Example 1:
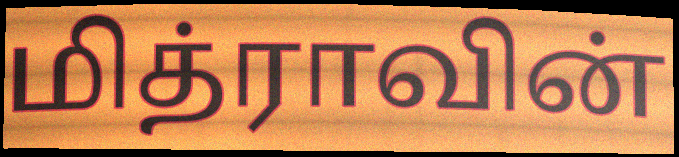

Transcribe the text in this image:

மித்ராவின்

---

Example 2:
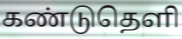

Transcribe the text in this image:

கண்டுதெளி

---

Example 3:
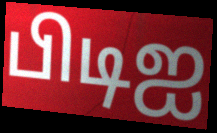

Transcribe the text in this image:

பிடிஐ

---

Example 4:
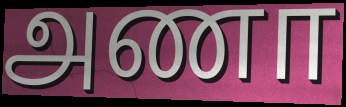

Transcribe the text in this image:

அணா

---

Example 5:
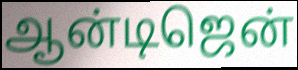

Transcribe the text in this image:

ஆன்டிஜென்